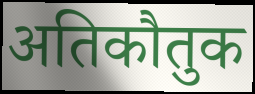
अतिकौतुक